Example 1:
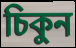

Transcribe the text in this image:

চিকুন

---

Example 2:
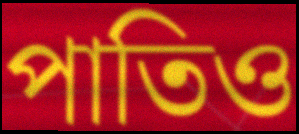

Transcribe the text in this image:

পাতিও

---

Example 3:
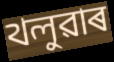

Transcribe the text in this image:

থলুৱাৰ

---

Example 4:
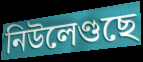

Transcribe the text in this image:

নিউলেণ্ডছে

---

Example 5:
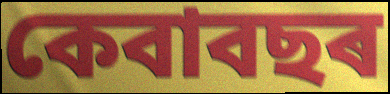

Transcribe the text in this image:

কেবাবছৰ